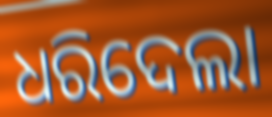
ଧରିଦେଲା